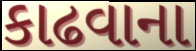
કાઢવાના